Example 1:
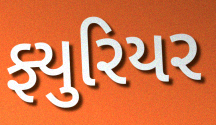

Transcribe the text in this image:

ફ્યુરિયર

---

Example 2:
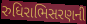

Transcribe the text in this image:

રુધિરાભિસરણની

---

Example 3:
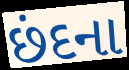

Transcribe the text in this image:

છંદના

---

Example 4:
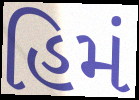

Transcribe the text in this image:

હિમં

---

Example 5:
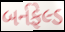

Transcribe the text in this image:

બર્નફેલ્ડ